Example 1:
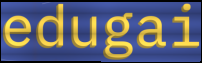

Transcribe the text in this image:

edugai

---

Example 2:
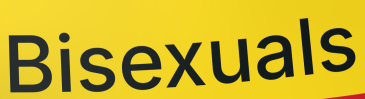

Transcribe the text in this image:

Bisexuals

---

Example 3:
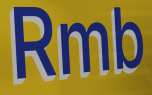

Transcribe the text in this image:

Rmb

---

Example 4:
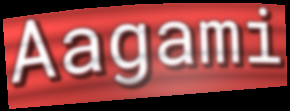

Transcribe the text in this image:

Aagami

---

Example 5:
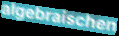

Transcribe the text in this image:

algebraischen